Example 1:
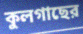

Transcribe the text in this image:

কুলগাছের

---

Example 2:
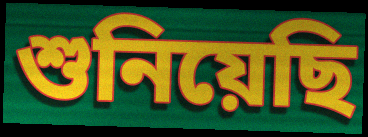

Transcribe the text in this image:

শুনিয়েছি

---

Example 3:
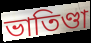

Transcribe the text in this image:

ভাতিণ্ডা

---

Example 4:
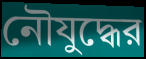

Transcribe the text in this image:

নৌযুদ্ধের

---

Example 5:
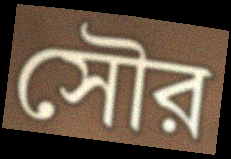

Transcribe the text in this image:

সৌর